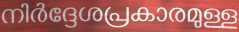
നിർദ്ദേശപ്രകാരമുള്ള